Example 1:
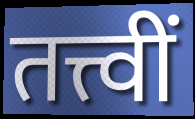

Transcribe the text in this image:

तत्त्वीं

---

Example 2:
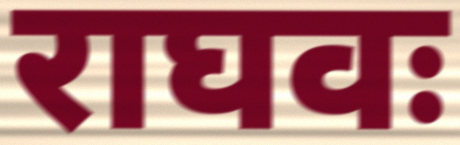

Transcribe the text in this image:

राघवः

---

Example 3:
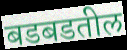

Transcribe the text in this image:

बडबडतील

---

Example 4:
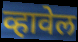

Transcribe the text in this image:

व्हावेल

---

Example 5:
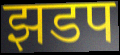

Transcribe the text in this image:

झडप